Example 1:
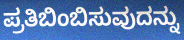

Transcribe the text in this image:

ಪ್ರತಿಬಿಂಬಿಸುವುದನ್ನು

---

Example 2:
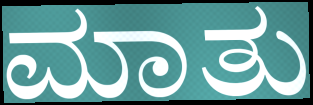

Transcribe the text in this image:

ಮಾತು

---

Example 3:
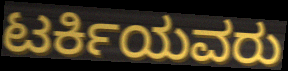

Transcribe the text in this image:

ಟರ್ಕಿಯವರು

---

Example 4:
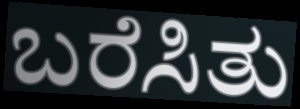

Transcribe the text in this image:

ಬರೆಸಿತು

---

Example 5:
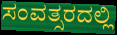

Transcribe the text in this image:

ಸಂವತ್ಸರದಲ್ಲಿ